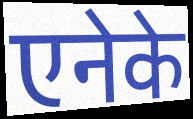
एनेके